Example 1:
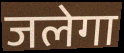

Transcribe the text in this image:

जलेगा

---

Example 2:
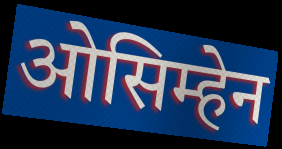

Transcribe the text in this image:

ओसिम्हेन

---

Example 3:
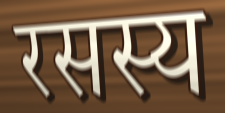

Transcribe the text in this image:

रसस्य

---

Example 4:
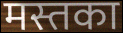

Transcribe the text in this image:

मस्तका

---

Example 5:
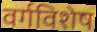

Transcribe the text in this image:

वर्गविशेष